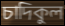
চাদিকুল